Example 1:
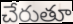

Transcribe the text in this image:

చేరుతూ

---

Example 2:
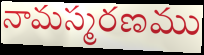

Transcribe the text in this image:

నామస్మరణము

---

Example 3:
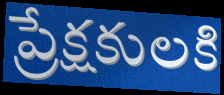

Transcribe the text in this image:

ప్రేక్షకులకి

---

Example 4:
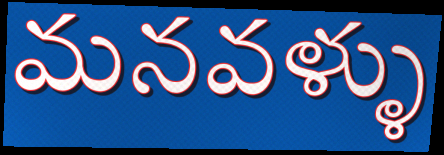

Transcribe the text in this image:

మనవళ్ళు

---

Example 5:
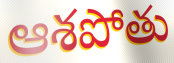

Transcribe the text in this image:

ఆశపోతు